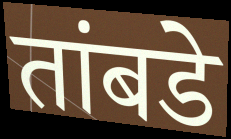
तांबडे